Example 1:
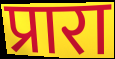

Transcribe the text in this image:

प्रारा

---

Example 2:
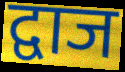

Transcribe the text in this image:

द्वाज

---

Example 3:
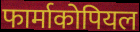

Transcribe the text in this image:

फार्माकोपियल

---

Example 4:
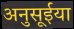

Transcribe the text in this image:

अनुसूईया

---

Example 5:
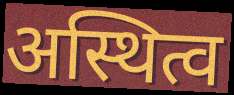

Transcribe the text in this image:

अस्थित्व